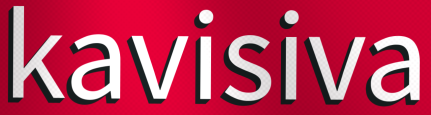
kavisiva